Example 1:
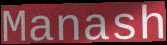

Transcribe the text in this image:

Manash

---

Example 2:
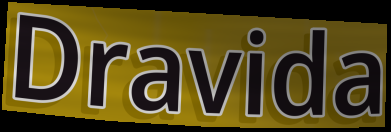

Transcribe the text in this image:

Dravida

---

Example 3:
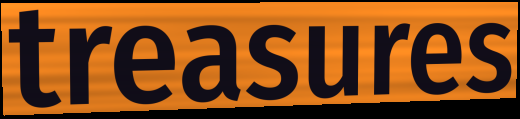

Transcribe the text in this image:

treasures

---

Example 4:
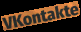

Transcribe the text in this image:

VKontakte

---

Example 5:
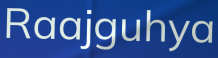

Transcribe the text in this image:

Raajguhya